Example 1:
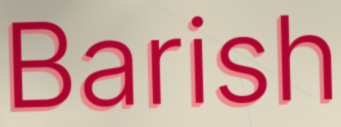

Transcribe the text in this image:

Barish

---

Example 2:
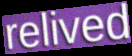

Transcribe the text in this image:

relived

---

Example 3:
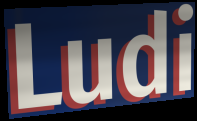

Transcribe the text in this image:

Ludi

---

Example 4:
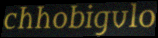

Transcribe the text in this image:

chhobigulo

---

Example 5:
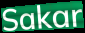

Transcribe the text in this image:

Sakar